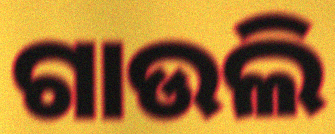
ଗାଉଲି